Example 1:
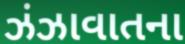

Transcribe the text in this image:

ઝંઝાવાતના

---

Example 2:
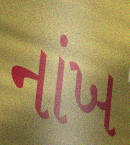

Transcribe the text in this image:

નાંખ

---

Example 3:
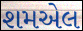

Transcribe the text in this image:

શમએલ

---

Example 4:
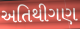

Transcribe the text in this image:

અતિથીગણ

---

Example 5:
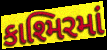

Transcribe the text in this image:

કાશ્મિરમાં